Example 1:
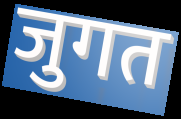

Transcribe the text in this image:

जुगत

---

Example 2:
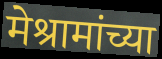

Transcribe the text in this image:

मेश्रामांच्या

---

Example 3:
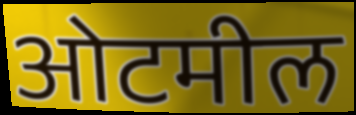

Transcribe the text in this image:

ओटमील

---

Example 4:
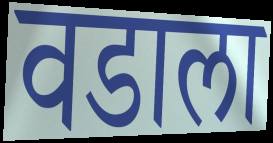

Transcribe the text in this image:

वडाला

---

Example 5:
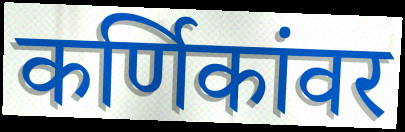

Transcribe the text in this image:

कर्णिकांवर